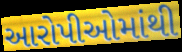
આરોપીઓમાંથી